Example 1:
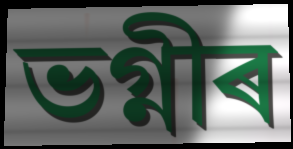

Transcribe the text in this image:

ভগ্নীৰ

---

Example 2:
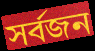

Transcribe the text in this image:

সৰ্বজন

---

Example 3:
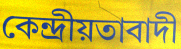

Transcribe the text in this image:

কেন্দ্ৰীয়তাবাদী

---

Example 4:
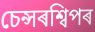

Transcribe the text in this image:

চেন্সৰশ্বিপৰ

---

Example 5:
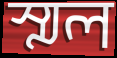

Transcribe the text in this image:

স্মল